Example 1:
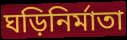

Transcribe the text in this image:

ঘড়িনির্মাতা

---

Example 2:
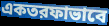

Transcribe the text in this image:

একতরফাভাবে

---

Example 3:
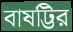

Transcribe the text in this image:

বাষট্টির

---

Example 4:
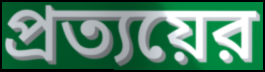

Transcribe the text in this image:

প্রত্যয়ের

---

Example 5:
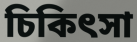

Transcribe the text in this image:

চিকিৎসা